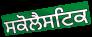
ਸਕੋਲੈਸਟਿਕ